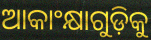
ଆକାଂକ୍ଷାଗୁଡ଼ିକୁ